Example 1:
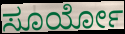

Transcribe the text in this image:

ಸೂರ್ಯೋ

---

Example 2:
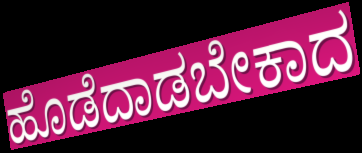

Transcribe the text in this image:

ಹೊಡೆದಾಡಬೇಕಾದ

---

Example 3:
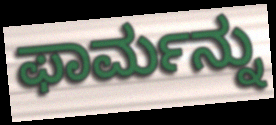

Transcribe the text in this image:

ಫಾರ್ಮನ್ನು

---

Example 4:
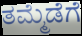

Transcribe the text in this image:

ತಮ್ಮೆಡೆಗೆ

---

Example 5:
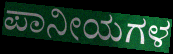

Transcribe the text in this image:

ಪಾನೀಯಗಳ